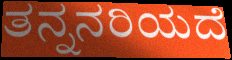
ತನ್ನನರಿಯದೆ